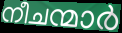
നീചന്മാർ